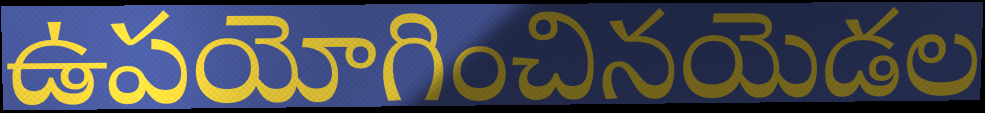
ఉపయోగించినయెడల